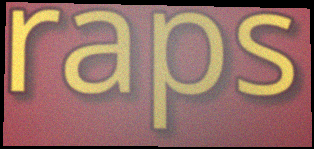
raps